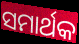
ସମାର୍ଥକ